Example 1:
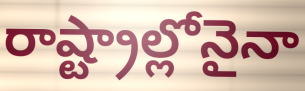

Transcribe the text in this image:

రాష్ట్రాల్లోనైనా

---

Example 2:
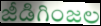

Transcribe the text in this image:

జీడిగింజల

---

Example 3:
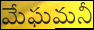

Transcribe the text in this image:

మేఘమనీ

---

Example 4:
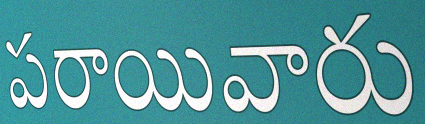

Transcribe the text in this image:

పరాయివారు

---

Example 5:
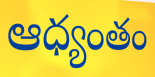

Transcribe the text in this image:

ఆధ్యంతం